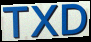
TXD